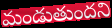
మండుతుందని